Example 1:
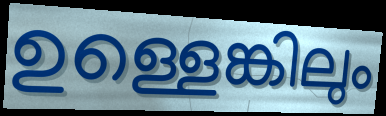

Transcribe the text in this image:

ഉള്ളെങ്കിലും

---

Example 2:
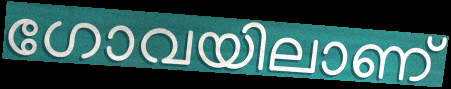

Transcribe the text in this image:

ഗോവയിലാണ്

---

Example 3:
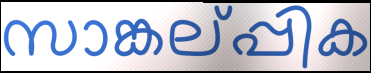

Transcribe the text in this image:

സാങ്കല്പ്പിക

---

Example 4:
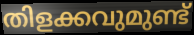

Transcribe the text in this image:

തിളക്കവുമുണ്ട്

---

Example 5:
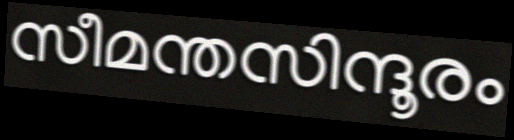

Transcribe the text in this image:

സീമന്തസിന്ദൂരം